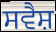
ਸਵੈਸ਼